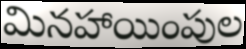
మినహాయింపుల